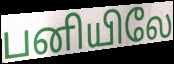
பனியிலே